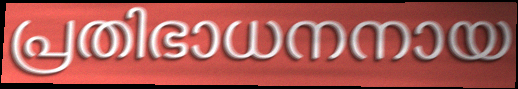
പ്രതിഭാധനനായ